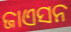
ଜାଏସନ